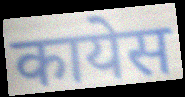
कायेस